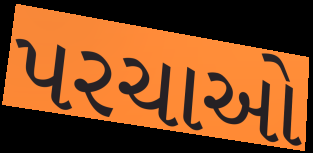
પરચાઓ